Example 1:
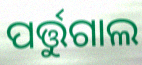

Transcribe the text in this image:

ପର୍ତ୍ତୁଗାଲ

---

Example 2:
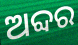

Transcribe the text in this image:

ଅବ୍ଦର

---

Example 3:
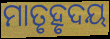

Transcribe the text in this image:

ମାତୃହୃଦୟ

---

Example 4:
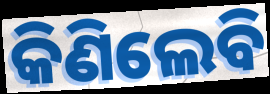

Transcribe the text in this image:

କିଣିଲେବି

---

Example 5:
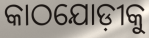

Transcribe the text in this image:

କାଠଯୋଡ଼ୀକୁ